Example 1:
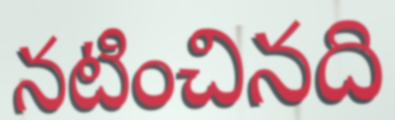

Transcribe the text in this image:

నటించినది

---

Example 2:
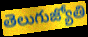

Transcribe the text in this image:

తెలుగుజ్యోతి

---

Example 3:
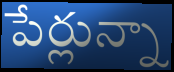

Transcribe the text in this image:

పేర్లున్నా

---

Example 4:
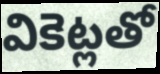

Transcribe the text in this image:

వికెట్లతో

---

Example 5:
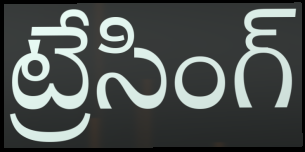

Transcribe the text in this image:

ట్రేసింగ్